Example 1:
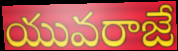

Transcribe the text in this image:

యువరాజే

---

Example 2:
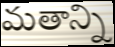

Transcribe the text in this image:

మతాన్ని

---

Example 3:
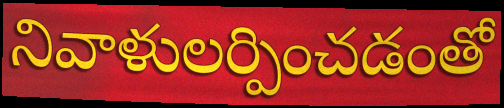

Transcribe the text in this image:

నివాళులర్పించడంతో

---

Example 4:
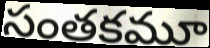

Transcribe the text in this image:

సంతకమూ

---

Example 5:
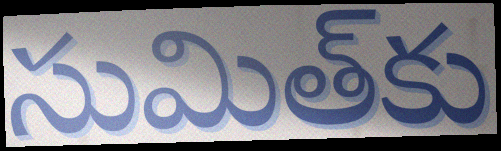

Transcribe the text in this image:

సుమిత్‌కు